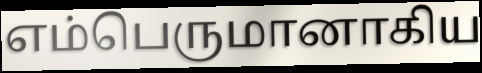
எம்பெருமானாகிய